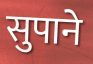
सुपाने